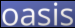
oasis